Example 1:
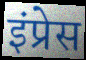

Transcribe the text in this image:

इंप्रेस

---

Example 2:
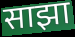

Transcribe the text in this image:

साझा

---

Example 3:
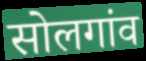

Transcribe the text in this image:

सोलगांव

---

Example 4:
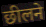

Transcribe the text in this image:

छीलने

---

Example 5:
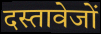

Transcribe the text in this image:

दस्तावेजों